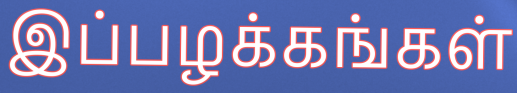
இப்பழக்கங்கள்